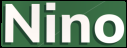
Nino